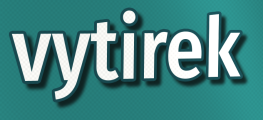
vytirek